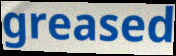
greased